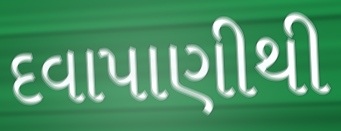
દવાપાણીથી